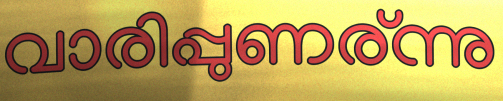
വാരിപ്പുണര്ന്നു